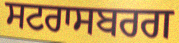
ਸਟਰਾਸਬਰਗ